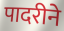
पादरीने